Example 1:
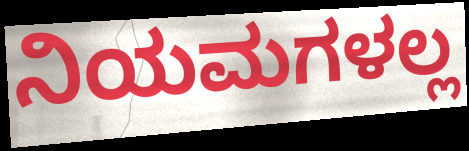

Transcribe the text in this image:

ನಿಯಮಗಳಲ್ಲ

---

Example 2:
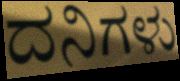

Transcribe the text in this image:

ದನಿಗಳು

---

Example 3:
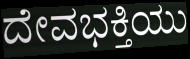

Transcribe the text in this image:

ದೇವಭಕ್ತಿಯು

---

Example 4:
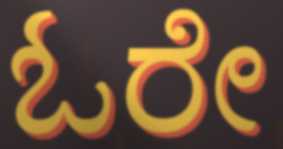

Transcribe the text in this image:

ಓರೇ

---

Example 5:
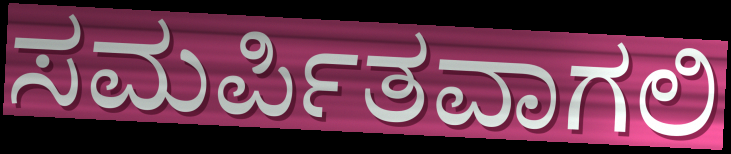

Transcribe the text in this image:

ಸಮರ್ಪಿತವಾಗಲಿ